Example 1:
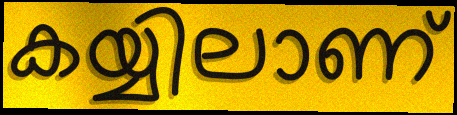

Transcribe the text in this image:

കയ്യിലാണ്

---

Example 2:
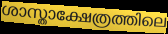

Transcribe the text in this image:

ശാസ്താക്ഷേത്രത്തിലെ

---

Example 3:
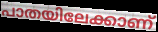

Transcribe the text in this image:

പാതയിലേക്കാണ്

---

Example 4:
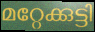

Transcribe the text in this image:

മറ്റേക്കുട്ടി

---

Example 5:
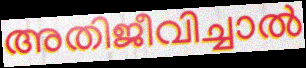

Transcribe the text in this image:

അതിജീവിച്ചാൽ